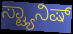
ಸ್ಟ್ಯಾನಿಷ್